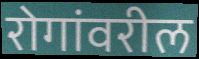
रोगांवरील